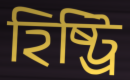
হিষ্ট্রি